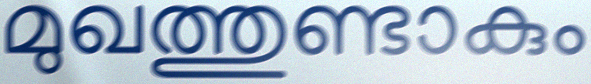
മുഖത്തുണ്ടാകും